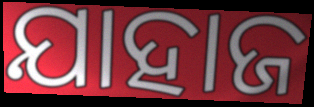
ଯାହାଜ